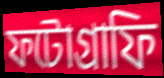
ফটোগ্রাফি